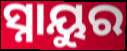
ସ୍ନାୟୁର